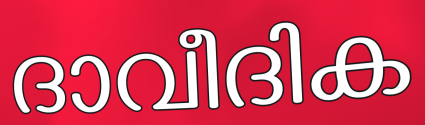
ദാവീദിക